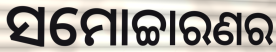
ସମୋଚ୍ଚାରଣର